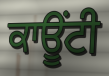
ਕਾਊਂਟੀ